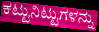
ಕಟ್ಟುನಿಟ್ಟುಗಳನ್ನು